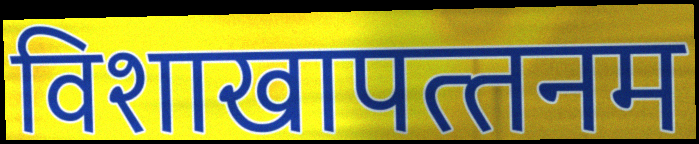
विशाखापत्‍तनम